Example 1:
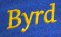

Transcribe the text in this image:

Byrd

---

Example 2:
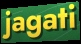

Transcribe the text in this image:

jagati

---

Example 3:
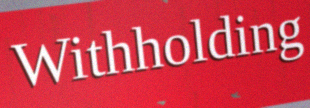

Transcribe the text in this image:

Withholding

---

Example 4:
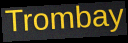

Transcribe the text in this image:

Trombay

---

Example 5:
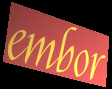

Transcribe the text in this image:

embor